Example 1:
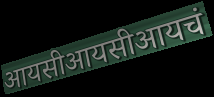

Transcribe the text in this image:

आयसीआयसीआयचं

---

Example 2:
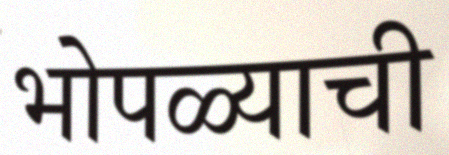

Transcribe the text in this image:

भोपळ्याची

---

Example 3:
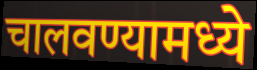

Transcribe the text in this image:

चालवण्यामध्ये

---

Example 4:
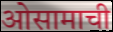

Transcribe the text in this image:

ओसामाची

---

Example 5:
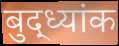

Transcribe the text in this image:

बुद्ध्यांक